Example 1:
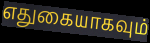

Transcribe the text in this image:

எதுகையாகவும்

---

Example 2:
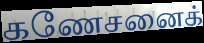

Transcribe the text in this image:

கணேசனைக்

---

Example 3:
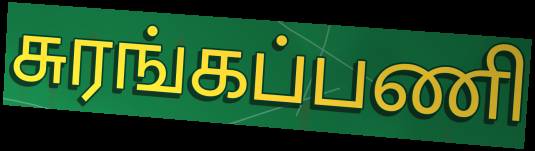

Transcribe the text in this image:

சுரங்கப்பணி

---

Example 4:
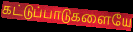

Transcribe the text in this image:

கட்டுப்பாடுகளையே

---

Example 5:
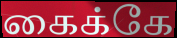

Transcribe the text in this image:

கைக்கே